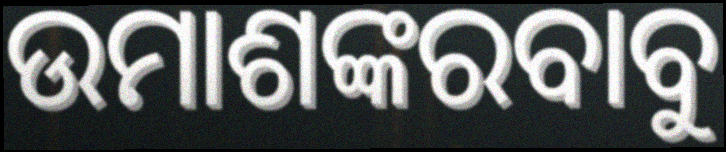
ଉମାଶଙ୍କରବାବୁ